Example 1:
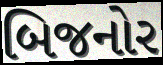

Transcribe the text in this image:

બિજનોર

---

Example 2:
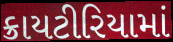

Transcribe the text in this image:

ક્રાયટીરિયામાં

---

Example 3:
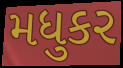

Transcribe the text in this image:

મધુકર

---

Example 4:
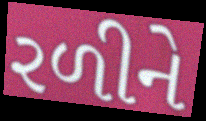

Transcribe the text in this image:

રળીને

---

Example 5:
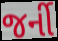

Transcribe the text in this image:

જર્ની